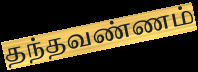
தந்தவண்ணம்